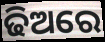
ଢିଅରେ